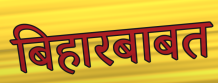
बिहारबाबत